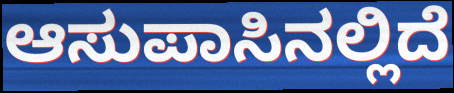
ಆಸುಪಾಸಿನಲ್ಲಿದೆ